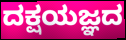
ದಕ್ಷಯಜ್ಞದ